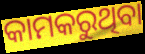
କାମକରୁଥିବା